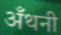
अँथनी